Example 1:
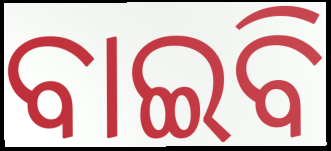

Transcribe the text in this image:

ବାଇବି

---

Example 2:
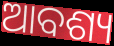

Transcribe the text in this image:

ଆବଶ୍ୟ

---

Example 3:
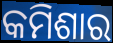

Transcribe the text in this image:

କମିଶାର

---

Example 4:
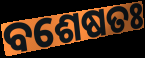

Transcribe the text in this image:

ବଶେଷତଃ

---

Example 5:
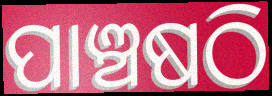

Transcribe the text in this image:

ପାଞ୍ଚଷଠି